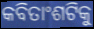
କବିତାଂଶଟିକୁ